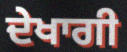
ਦੇਖਾਗੀ